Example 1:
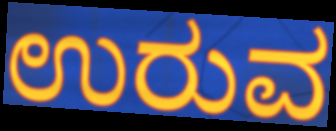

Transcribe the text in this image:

ಉರುವ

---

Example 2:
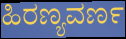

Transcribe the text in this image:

ಹಿರಣ್ಯವರ್ಣ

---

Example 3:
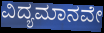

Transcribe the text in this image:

ವಿದ್ಯಮಾನವೇ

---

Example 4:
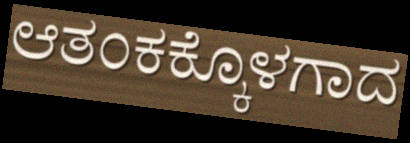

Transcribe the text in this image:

ಆತಂಕಕ್ಕೊಳಗಾದ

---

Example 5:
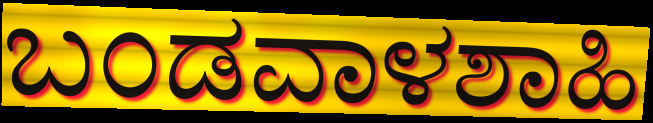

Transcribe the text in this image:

ಬಂಡವಾಳಶಾಹಿ